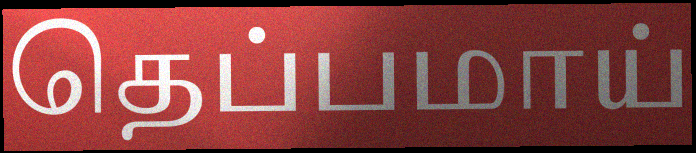
தெப்பமாய்